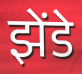
झेंडे